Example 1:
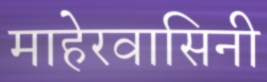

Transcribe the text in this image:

माहेरवासिनी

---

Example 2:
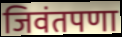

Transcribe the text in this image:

जिवंतपणा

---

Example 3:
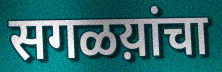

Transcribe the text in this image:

सगळय़ांचा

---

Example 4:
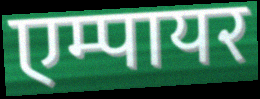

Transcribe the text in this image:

एम्पायर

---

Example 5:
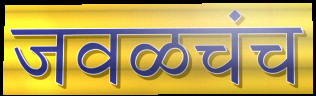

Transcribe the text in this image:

जवळचंच